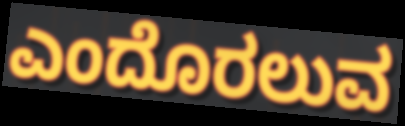
ಎಂದೊರಲುವ